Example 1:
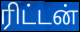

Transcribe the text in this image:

ரிட்டன்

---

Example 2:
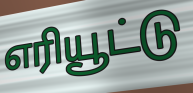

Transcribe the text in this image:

எரியூட்டு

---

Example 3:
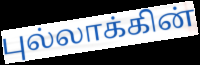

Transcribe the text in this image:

புல்லாக்கின்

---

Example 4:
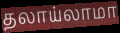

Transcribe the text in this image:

தலாய்லாமா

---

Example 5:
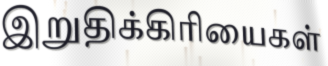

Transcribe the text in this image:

இறுதிக்கிரியைகள்